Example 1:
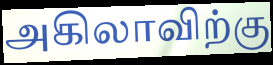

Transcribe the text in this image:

அகிலாவிற்கு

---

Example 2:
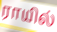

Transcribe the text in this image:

ராயில்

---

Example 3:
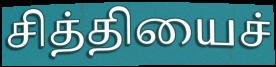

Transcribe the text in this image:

சித்தியைச்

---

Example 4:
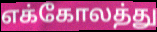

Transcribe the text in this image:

எக்கோலத்து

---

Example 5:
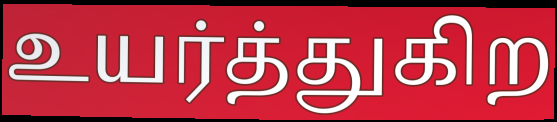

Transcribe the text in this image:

உயர்த்துகிற